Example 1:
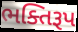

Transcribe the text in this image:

ભક્તિરૂપ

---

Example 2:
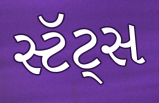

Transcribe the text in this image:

સ્ટૅટ્સ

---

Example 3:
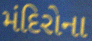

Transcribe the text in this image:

મંદિરોના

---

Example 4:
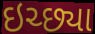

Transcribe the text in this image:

ઇચ્છ્યા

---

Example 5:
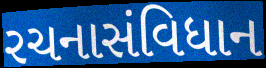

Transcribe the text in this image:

રચનાસંવિધાન